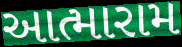
આત્મારામ